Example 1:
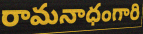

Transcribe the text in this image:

రామనాధంగారి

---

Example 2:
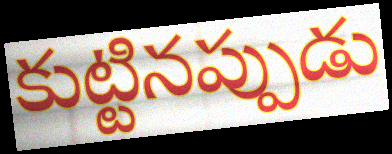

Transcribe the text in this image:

కుట్టినప్పుడు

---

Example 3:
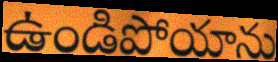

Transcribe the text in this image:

ఉండిపోయాను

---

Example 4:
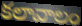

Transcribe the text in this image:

కలావాలం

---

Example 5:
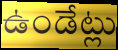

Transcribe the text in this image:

ఉండేట్లు